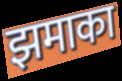
झमाका